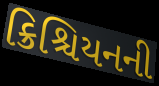
ક્રિશ્ચિયનની